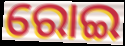
ରୋଇ